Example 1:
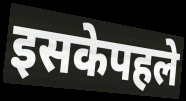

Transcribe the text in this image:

इसकेपहले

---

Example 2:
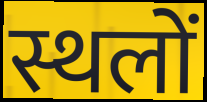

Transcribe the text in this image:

स्थलों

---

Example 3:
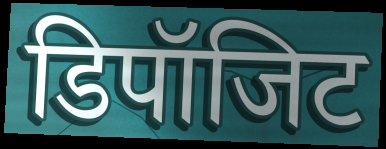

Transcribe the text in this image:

डिपॉजिट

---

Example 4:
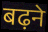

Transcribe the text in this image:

बढ़ने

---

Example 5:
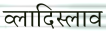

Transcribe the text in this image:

व्लादिस्लाव